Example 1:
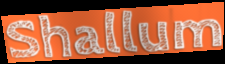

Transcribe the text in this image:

Shallum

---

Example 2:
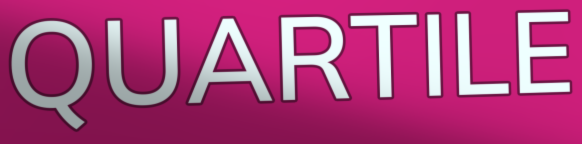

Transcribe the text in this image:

QUARTILE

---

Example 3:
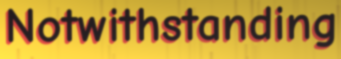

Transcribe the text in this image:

Notwithstanding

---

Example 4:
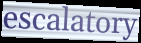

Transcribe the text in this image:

escalatory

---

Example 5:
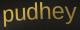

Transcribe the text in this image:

pudhey